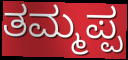
ತಮ್ಮಪ್ಪ